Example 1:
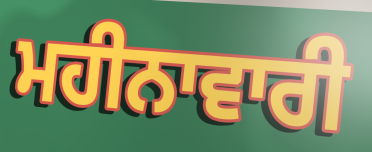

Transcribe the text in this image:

ਮਹੀਨਾਵਾਰੀ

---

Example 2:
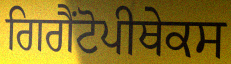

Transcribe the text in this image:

ਗਿਗੈਂਟੋਪੀਥੇਕਸ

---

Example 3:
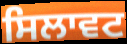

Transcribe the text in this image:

ਸਿਲਾਵਟ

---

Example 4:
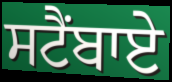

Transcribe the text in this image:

ਸਟੈਂਬਾਏ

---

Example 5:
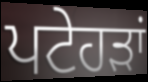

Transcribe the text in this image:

ਪਟੇਹੜਾਂ